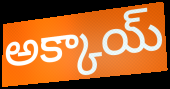
అక్కాయ్